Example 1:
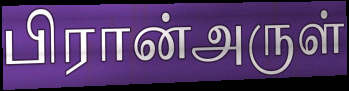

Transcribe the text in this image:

பிரான்அருள்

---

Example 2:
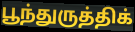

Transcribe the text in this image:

பூந்துருத்திக்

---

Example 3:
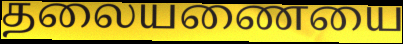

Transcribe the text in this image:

தலையணையை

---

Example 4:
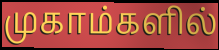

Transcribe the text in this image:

முகாம்களில்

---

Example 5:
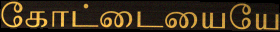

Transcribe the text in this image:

கோட்டையையே